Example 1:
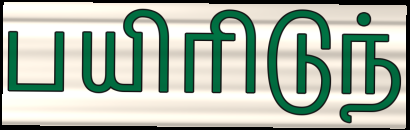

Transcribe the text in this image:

பயிரிடுந்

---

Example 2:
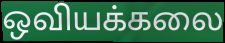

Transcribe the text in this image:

ஒவியக்கலை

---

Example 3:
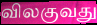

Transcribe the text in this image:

விலகுவது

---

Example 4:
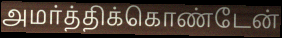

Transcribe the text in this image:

அமர்த்திக்கொண்டேன்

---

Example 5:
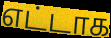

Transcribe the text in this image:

எட்டாக